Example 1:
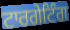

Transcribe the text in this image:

ਟਾਰਗੇਟਿੰਗ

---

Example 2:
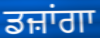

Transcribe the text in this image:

ਡਜ਼ਾਂਗਾ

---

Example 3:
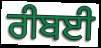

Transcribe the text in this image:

ਰੀਬਈ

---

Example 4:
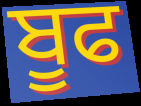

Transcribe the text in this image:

ਬੂਫ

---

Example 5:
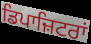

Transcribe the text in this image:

ਡਿਪਾਜ਼ਿਟਰਾਂ